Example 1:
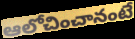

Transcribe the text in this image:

ఆలోచించానంటే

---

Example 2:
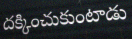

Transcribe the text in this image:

దక్కించుకుంటాడు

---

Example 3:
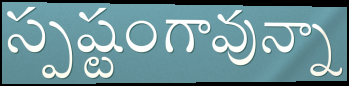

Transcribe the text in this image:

స్పష్టంగావున్నా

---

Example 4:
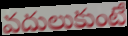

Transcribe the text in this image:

వదులుకుంటే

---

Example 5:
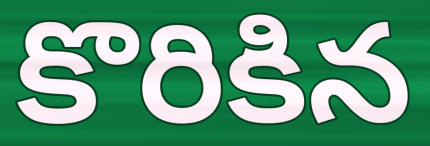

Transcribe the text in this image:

కొరికిన